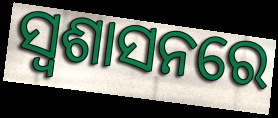
ସ୍ଵଶାସନରେ